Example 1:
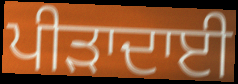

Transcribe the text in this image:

ਪੀੜਾਦਾਈ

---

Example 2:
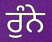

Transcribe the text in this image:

ਰੁੰਨੇ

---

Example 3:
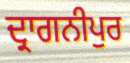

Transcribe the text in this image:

ਦ੍ਰਾਗਨੀਪੁਰ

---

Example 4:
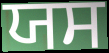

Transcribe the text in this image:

ਯਸ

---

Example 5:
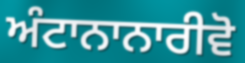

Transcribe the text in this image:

ਅੰਟਾਨਾਨਾਰੀਵੋ